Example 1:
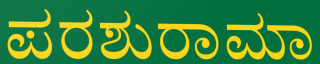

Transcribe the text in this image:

ಪರಶುರಾಮಾ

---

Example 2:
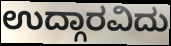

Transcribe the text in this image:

ಉದ್ಗಾರವಿದು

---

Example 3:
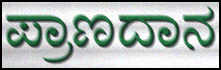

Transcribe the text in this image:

ಪ್ರಾಣದಾನ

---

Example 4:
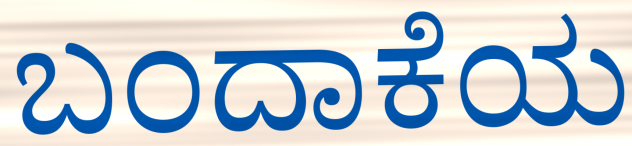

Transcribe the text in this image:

ಬಂದಾಕೆಯ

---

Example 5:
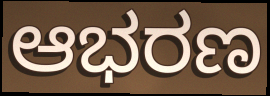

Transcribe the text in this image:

ಆಭರಣ